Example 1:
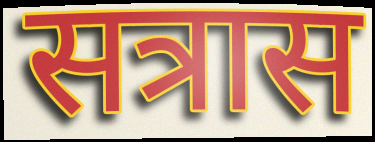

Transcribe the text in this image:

सत्रास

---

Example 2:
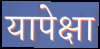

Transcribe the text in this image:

यापेक्षा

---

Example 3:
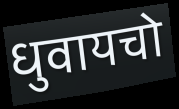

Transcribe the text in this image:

धुवायचो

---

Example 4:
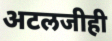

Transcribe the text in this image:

अटलजीही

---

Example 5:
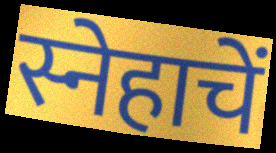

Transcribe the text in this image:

स्नेहाचें